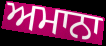
ਅਮਾਨਾ